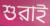
শুৱাই